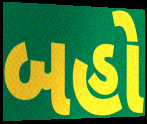
બહો